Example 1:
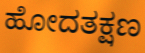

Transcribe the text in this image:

ಹೋದತಕ್ಷಣ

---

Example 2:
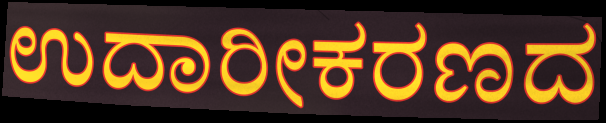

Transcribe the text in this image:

ಉದಾರೀಕರಣದ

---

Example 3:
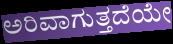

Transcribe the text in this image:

ಅರಿವಾಗುತ್ತದೆಯೇ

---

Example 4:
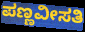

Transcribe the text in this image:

ಪಣ್ಣವೀಸತಿ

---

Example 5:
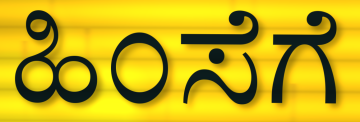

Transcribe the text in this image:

ಹಿಂಸೆಗೆ